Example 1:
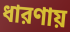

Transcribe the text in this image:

ধারণায়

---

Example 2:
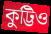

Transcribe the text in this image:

কুট্টিও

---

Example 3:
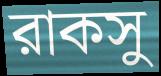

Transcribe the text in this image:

রাকসু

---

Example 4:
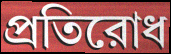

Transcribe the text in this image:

প্রতিরোধ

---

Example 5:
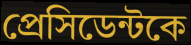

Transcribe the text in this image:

প্রেসিডেন্টকে